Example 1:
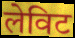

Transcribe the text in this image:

लेविट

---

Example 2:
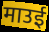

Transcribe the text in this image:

माउई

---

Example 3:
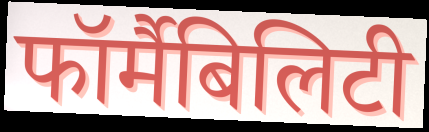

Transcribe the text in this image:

फॉर्मैबिलिटी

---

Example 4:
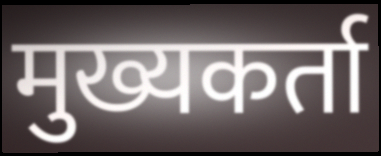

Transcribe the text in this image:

मुख्यकर्ता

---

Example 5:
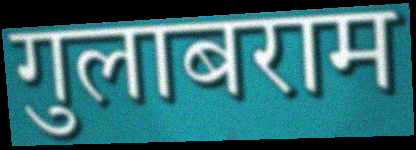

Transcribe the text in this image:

गुलाबराम